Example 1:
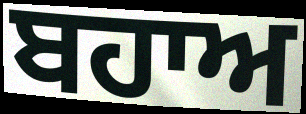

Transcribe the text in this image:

ਬਹਾਅ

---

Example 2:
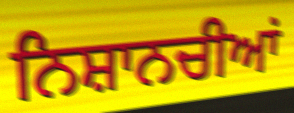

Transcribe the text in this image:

ਨਿਸ਼ਾਨਚੀਆਂ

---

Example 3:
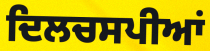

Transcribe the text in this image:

ਦਿਲਚਸਪੀਆਂ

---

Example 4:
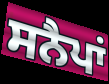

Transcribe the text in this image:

ਸਨੈਪਾਂ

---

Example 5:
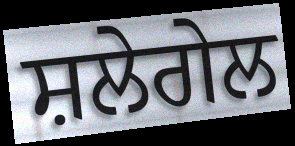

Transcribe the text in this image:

ਸ਼ਲੇਗੇਲ